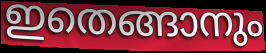
ഇതെങ്ങാനും